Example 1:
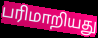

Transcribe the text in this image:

பரிமாறியது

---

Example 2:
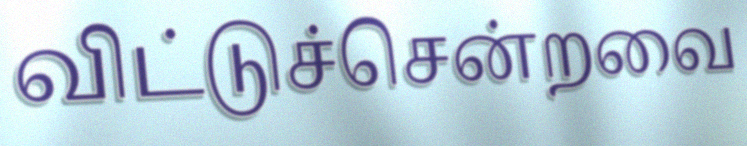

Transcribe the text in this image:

விட்டுச்சென்றவை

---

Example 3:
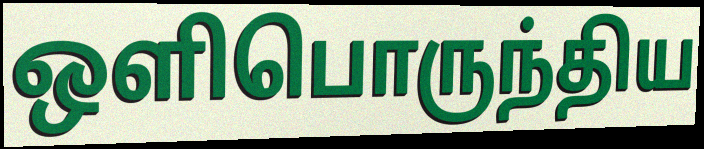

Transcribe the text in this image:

ஒளிபொருந்திய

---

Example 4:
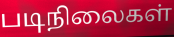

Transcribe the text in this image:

படிநிலைகள்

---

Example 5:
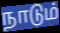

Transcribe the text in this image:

நாடும்